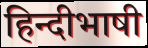
हिन्दीभाषी